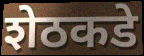
शेठकडे